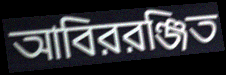
আবিররঞ্জিত